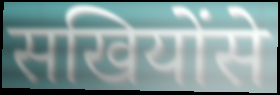
सखियोंसे